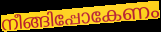
നീങ്ങിപ്പോകേണം